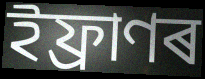
ইফ্ৰাণৰ